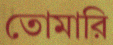
তোমারি